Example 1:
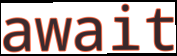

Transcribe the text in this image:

await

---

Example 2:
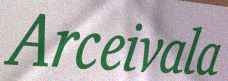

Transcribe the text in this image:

Arceivala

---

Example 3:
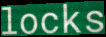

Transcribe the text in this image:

locks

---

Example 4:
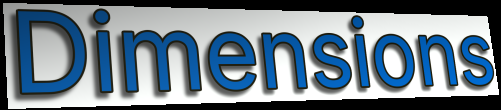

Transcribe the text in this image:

Dimensions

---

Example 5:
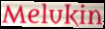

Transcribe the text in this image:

Melukin